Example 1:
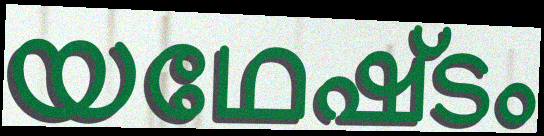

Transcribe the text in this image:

യഥേഷ്‌ടം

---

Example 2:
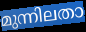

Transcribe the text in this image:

മുന്നിലതാ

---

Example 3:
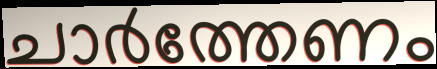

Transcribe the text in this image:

ചാർത്തേണം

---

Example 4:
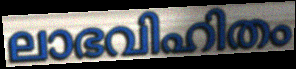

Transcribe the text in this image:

ലാഭവിഹിതം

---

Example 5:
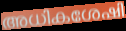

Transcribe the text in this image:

അധികശേഷി